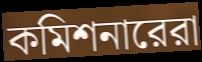
কমিশনারেরা